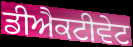
ਡੀਐਕਟੀਵੇਟ